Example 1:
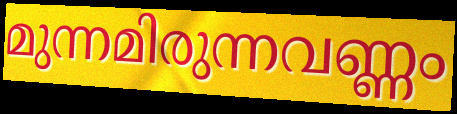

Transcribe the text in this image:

മുന്നമിരുന്നവണ്ണം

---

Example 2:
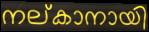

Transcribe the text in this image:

നല്കാനായി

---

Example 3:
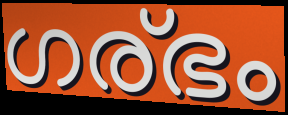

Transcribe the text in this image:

ഗര്ഭം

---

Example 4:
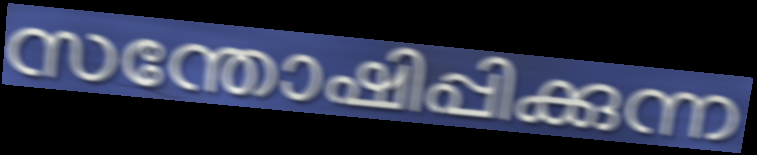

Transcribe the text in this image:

സന്തോഷിപ്പിക്കുന്ന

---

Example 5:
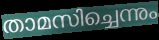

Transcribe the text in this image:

താമസിച്ചെന്നും